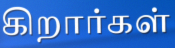
கிறார்கள்